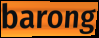
barong